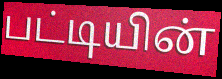
பட்டியின்